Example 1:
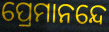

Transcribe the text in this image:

ପ୍ରେମାନନ୍ଦେ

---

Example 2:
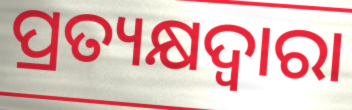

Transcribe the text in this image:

ପ୍ରତ୍ୟକ୍ଷଦ୍ବାରା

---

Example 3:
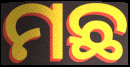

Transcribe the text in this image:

ମଛ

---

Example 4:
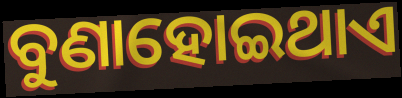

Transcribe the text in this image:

ବୁଣାହୋଇଥାଏ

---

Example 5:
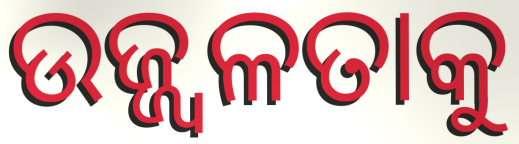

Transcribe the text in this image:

ଉଜ୍ଜ୍ୱଳତାକୁ